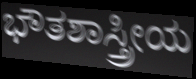
ಭೌತಶಾಸ್ತ್ರೀಯ